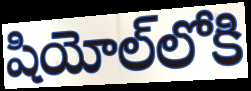
షియోల్‌లోకి